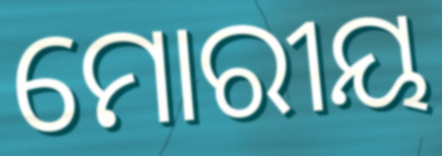
ମୋରୀୟ